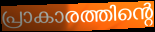
പ്രാകാരത്തിന്റെ